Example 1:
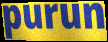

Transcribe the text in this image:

purun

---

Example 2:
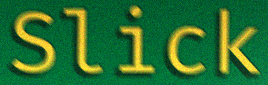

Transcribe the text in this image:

Slick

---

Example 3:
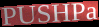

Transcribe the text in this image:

PUSHPa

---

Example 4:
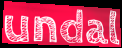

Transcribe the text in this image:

undal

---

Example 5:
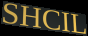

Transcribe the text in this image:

SHCIL